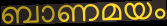
ബാണമയം